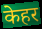
केहर